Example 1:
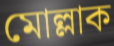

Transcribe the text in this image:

মোল্লাক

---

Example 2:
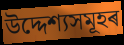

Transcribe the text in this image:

উদ্দেশ্যসমূহৰ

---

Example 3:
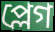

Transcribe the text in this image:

প্লেগ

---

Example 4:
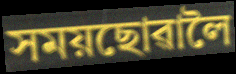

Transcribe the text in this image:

সময়ছোৱালৈ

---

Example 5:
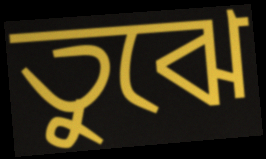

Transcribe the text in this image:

তুঝে